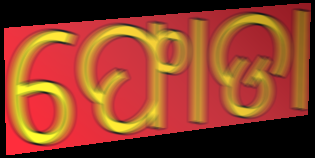
ଫୋଡା